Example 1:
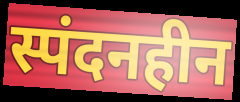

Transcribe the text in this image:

स्पंदनहीन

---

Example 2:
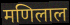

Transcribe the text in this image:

मणिलाल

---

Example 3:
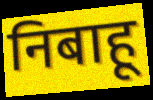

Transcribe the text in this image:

निबाहू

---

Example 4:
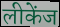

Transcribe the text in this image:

लीकेंज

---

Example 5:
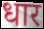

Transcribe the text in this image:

धार